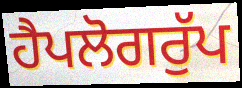
ਹੈਪਲੋਗਰੁੱਪ